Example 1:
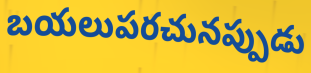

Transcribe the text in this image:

బయలుపరచునప్పుడు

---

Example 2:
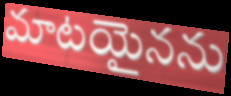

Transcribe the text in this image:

మాటయైనను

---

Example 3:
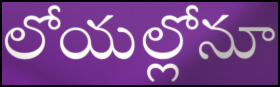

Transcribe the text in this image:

లోయల్లోనూ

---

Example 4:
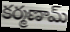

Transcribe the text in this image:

కర్మణామ్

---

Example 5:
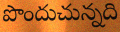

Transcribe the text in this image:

పొందుచున్నది